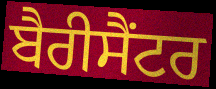
ਬੈਰੀਸੈਂਟਰ